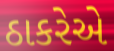
ઠાકરેએ